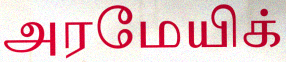
அரமேயிக்